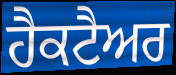
ਹੈਕਟੈਅਰ